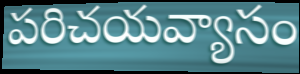
పరిచయవ్యాసం